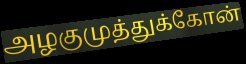
அழகுமுத்துக்கோன்